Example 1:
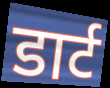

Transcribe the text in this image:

डार्ट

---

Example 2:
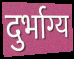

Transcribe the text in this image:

दुर्भाग्य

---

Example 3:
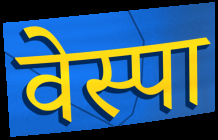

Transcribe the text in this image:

वेस्पा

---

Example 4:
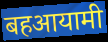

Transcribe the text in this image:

बहआयामी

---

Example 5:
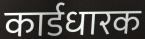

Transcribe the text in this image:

कार्डधारक